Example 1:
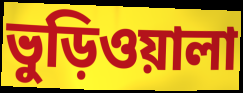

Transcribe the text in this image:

ভুড়িওয়ালা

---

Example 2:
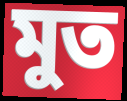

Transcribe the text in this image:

মুত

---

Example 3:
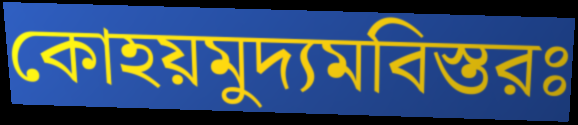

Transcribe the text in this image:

কোহয়মুদ্যমবিস্তরঃ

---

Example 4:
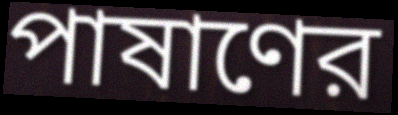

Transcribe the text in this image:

পাষাণের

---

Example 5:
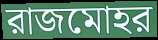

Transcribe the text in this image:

রাজমোহর